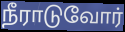
நீராடுவோர்